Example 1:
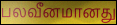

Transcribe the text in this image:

பலவீனமானது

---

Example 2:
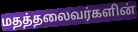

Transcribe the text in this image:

மதத்தலைவர்களின்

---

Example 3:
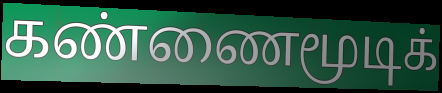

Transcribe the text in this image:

கண்ணைமூடிக்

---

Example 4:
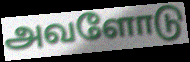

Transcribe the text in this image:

அவளோடு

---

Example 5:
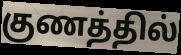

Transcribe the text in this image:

குணத்தில்